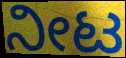
ನೀಟ